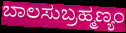
ಬಾಲಸುಬ್ರಹ್ಮಣ್ಯಂ